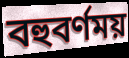
বহুবর্ণময়